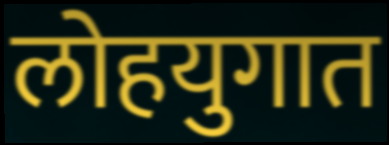
लोहयुगात